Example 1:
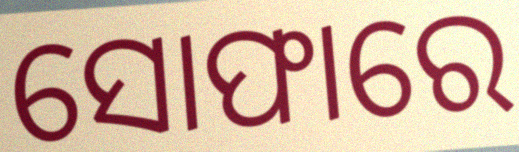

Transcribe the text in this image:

ସୋଫାରେ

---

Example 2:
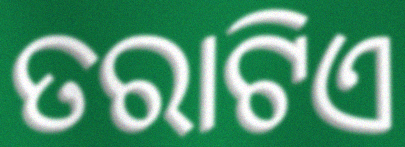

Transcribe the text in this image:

ତରାଟିଏ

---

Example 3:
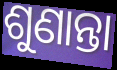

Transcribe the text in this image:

ଶୁଣାନ୍ତା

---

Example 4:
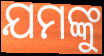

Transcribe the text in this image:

ଯମଙ୍କୁ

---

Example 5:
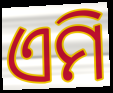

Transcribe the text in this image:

ଏମି